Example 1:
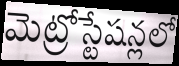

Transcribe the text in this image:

మెట్రోస్టేషన్లలో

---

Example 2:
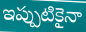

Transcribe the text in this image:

ఇప్పుటికైనా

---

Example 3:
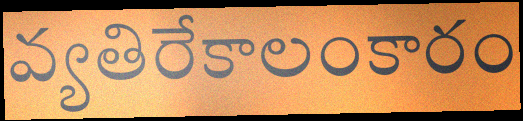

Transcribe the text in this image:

వ్యతిరేకాలంకారం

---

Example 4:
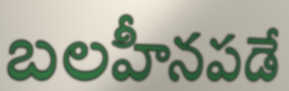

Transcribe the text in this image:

బలహీనపడే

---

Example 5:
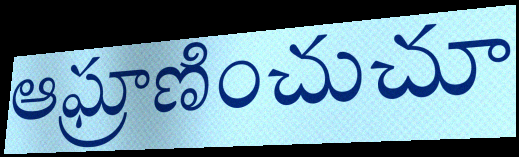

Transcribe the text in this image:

ఆఘ్రాణించుచూ